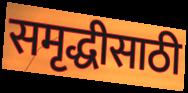
समृद्धीसाठी